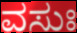
ವಸುಃ